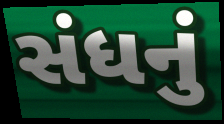
સંધનું